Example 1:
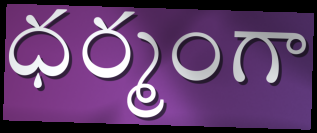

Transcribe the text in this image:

ధర్మంగా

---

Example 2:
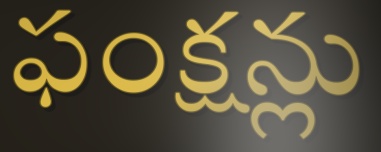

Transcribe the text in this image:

ఫంక్షన్లు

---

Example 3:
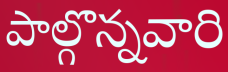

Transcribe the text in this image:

పాల్గొన్నవారి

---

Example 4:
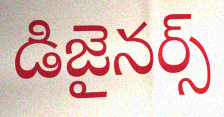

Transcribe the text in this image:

డిజైనర్స్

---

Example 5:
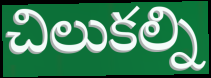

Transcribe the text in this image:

చిలుకల్ని